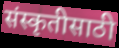
संस्कृतीसाठी